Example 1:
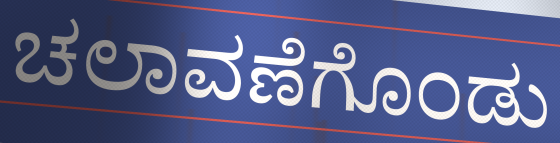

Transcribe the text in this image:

ಚಲಾವಣೆಗೊಂಡು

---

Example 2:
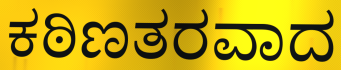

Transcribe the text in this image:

ಕಠಿಣತರವಾದ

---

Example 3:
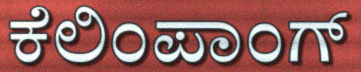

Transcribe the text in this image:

ಕೆಲಿಂಪಾಂಗ್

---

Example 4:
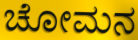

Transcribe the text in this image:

ಚೋಮನ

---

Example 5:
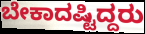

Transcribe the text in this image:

ಬೇಕಾದಷ್ಟಿದ್ದರು